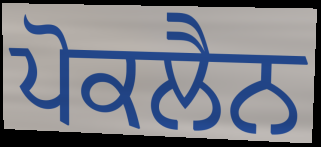
ਪੋਕਲੈਨ